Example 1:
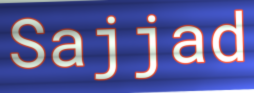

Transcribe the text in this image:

Sajjad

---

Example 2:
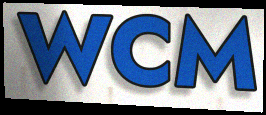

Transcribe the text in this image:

WCM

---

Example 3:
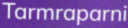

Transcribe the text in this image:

Tarmraparni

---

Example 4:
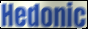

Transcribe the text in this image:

Hedonic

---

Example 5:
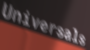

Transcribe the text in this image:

Universals